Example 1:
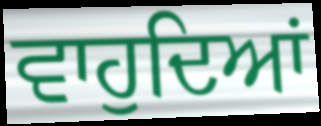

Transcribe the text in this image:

ਵਾਹੁਦਿਆਂ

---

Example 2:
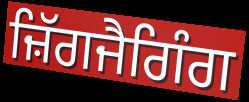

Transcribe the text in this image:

ਜ਼ਿੱਗਜੈਗਿੰਗ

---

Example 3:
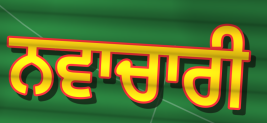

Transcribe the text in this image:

ਨਵਾਚਾਰੀ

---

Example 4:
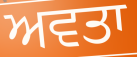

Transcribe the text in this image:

ਅਵਤਾ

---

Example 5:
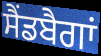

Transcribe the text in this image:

ਸੈਂਡਬੈਗਾਂ